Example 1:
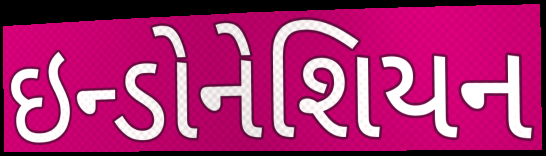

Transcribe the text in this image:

ઇન્ડોનેશિયન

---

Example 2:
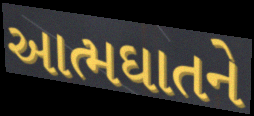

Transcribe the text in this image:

આત્મઘાતને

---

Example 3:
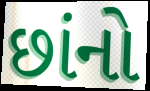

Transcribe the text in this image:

છાંનો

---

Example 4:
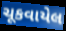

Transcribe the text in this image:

ચૂકવાયેલ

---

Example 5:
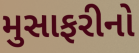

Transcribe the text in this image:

મુસાફરીનો